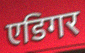
एडिगर